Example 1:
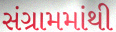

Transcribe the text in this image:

સંગ્રામમાંથી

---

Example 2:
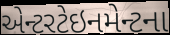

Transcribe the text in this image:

એન્ટરટેઇનમેન્ટના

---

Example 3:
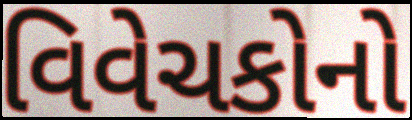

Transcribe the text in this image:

વિવેચકોનો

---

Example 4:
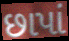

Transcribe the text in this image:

છાપાં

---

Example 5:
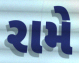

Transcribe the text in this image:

રામે